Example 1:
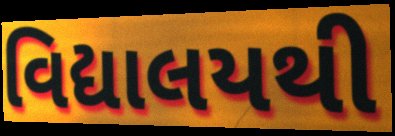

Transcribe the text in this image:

વિદ્યાલયથી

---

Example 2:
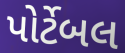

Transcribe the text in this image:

પોર્ટેબલ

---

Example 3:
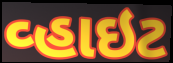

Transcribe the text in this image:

વ્હાઇટ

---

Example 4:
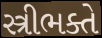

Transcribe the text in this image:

સ્ત્રીભક્તે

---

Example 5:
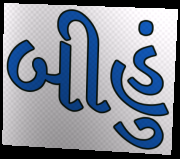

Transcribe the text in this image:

બીહું